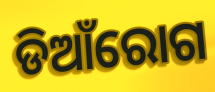
ଡିଆଁରୋଗ